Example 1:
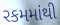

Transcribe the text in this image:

રકમમાંથી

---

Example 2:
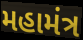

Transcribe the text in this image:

મહામંત્ર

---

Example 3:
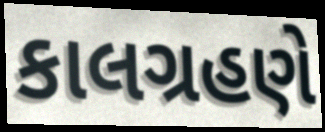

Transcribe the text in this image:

કાલગ્રહણે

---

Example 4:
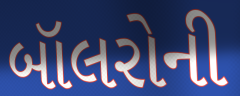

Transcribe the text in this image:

બૉલરોની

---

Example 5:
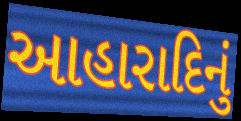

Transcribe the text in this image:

આહારાદિનું